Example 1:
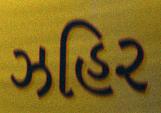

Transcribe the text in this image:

ઝહિર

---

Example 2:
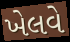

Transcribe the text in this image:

ખેલવે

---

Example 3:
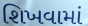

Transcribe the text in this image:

શિખવામાં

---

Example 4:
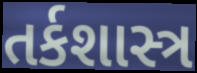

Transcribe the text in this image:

તર્કશાસ્ત્ર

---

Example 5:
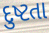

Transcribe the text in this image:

દુષ્ટતા